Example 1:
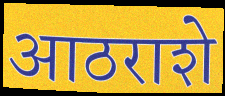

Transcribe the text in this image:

आठराशे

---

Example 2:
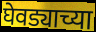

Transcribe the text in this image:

घेवड्याच्या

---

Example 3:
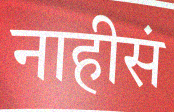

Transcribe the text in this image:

नाहीसं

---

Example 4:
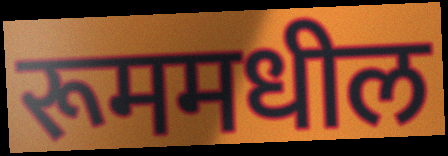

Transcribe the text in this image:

रूममधील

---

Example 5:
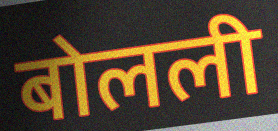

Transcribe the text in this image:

बोलली